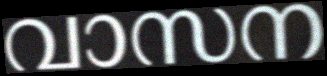
വാസന